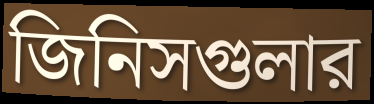
জিনিসগুলার